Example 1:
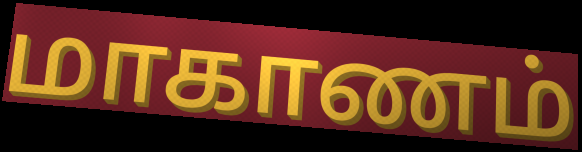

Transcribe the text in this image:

மாகாணம்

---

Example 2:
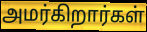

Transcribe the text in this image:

அமர்கிறார்கள்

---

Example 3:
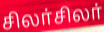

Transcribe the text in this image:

சிலர்சிலர்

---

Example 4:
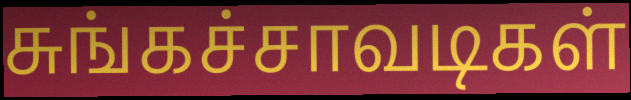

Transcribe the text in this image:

சுங்கச்சாவடிகள்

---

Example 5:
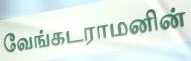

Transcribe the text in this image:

வேங்கடராமனின்